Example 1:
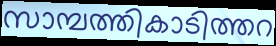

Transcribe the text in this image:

സാമ്പത്തികാടിത്തറ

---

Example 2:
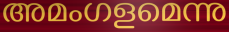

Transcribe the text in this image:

അമംഗളമെന്നു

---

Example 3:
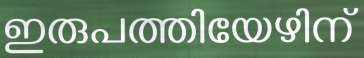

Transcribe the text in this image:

ഇരുപത്തിയേഴിന്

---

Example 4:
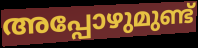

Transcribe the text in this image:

അപ്പോഴുമുണ്ട്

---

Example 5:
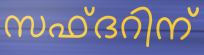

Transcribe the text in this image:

സഫ്ദറിന്